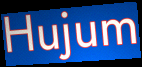
Hujum